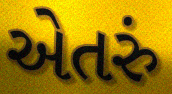
એતરું